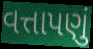
વત્તાપણું